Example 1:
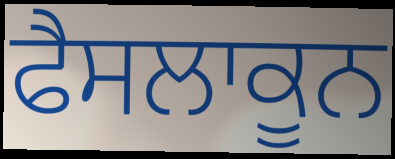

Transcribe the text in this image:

ਫੈਸਲਾਕੂਨ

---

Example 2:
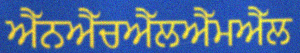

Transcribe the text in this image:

ਐੱਨਐੱਚਐੱਲਐੱਮਐੱਲ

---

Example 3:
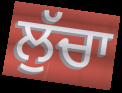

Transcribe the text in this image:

ਲੁੱਚਾ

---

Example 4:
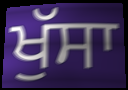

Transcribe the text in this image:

ਖੁੱਸਾ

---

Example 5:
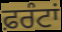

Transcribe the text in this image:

ਫ਼ਰੰਟਾਂ